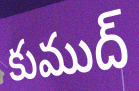
కుముద్